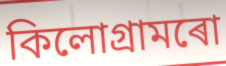
কিলোগ্ৰামৰো